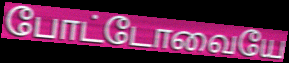
போட்டோவையே